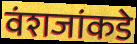
वंशजांकडे